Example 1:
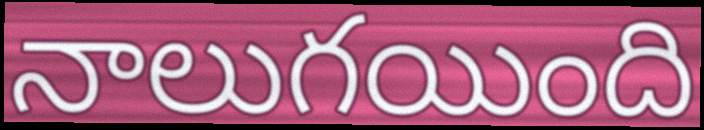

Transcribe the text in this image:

నాలుగయింది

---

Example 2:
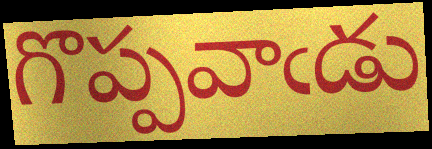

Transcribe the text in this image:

గొప్పవాఁడు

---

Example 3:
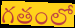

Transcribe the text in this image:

గతంలో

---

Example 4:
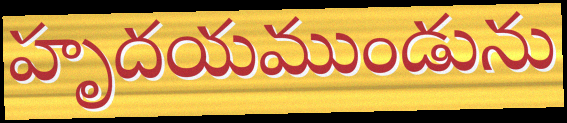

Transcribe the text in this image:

హృదయముండును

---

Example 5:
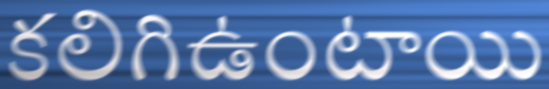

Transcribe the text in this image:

కలిగిఉంటాయి